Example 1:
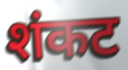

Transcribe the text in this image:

शंकट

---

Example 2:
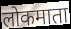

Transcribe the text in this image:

लोकमाता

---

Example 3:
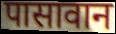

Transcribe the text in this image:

पासावान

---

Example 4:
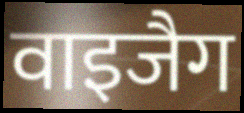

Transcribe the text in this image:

वाइजैग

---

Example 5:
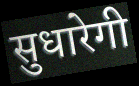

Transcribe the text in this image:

सुधारेगी